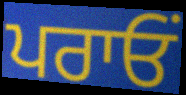
ਪਰਾਓਂ